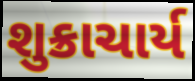
શુક્રાચાર્ય